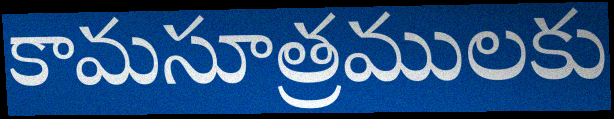
కామసూత్రములకు